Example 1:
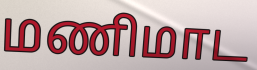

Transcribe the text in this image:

மணிமாட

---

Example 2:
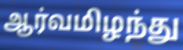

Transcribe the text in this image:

ஆர்வமிழந்து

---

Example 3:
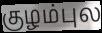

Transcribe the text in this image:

குழம்புல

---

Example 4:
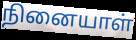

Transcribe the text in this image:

நினையாள்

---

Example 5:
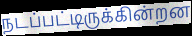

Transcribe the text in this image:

நடப்பட்டிருக்கின்றன